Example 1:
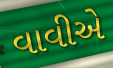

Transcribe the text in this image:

વાવીએ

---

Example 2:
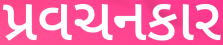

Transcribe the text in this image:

પ્રવચનકાર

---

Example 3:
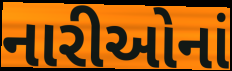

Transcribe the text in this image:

નારીઓનાં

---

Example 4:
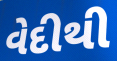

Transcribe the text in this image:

વેદીથી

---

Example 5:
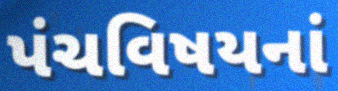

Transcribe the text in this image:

પંચવિષયનાં